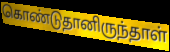
கொண்டுதானிருந்தாள்